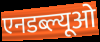
एनडब्ल्यूओ